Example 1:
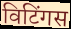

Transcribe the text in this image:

विटिंगस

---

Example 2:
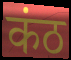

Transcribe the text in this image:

कंठ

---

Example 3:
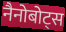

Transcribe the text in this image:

नैनोबोट्स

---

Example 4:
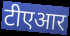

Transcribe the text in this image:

टीएआर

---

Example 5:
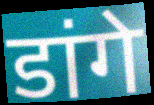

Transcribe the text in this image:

डांगे